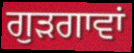
ਗੁੜਗਾਵਾਂ